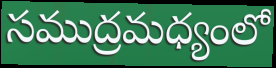
సముద్రమధ్యంలో